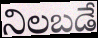
నిలబడే